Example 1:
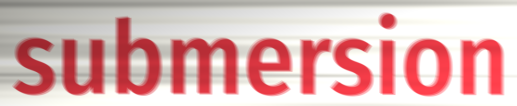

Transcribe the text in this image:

submersion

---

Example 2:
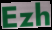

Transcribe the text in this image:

Ezh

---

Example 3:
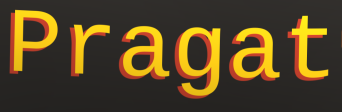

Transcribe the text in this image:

Pragat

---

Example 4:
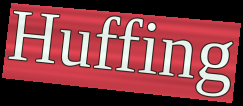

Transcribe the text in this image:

Huffing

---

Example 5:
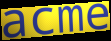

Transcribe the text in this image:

acme